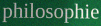
philosophie